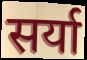
सर्या